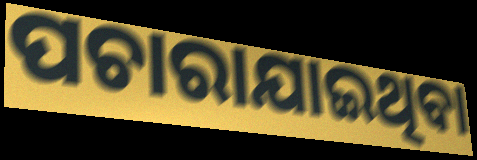
ପଚାରାଯାଇଥିବା